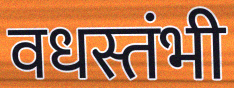
वधस्तंभी